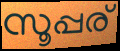
സൂപ്പര്